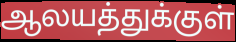
ஆலயத்துக்குள்